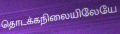
தொடக்கநிலையிலேயே